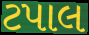
ટપાલ